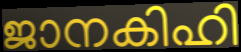
ജാനകിഹി